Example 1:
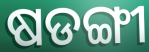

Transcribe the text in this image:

ଷଡଙ୍ଗୀ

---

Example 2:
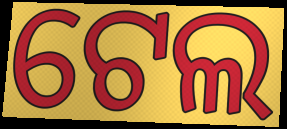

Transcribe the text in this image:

ଟେଲ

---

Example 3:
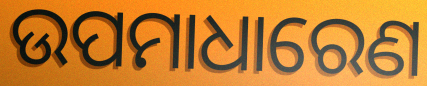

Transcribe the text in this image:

ଉପମାଧାରେଣ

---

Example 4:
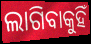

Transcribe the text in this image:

ଲାଗିବାକୁହିଁ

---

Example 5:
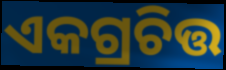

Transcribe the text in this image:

ଏକଗ୍ରଚିତ୍ତ